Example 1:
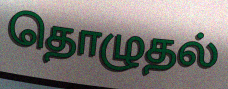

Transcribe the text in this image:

தொழுதல்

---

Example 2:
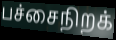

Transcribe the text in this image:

பச்சைநிறக்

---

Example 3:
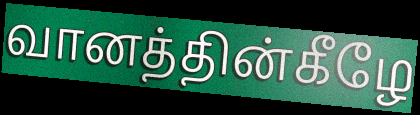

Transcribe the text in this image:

வானத்தின்கீழே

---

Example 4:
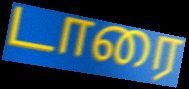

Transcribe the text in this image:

டாரை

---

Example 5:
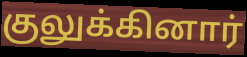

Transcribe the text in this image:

குலுக்கினார்